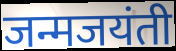
जन्मजयंती